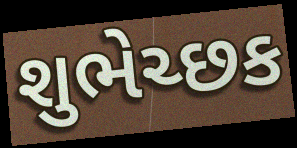
શુભેચ્છક